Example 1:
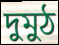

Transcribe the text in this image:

দুমুঠ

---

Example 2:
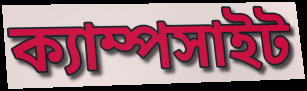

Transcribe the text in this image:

ক্যাম্পসাইট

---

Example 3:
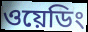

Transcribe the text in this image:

ওয়েডিং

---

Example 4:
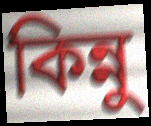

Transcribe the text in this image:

কিন্নু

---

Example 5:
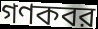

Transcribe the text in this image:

গণকবর